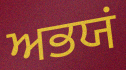
ਅਭਯਂ